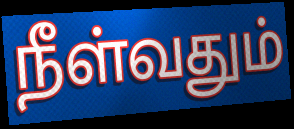
நீள்வதும்